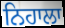
ਨਿਹਾਲਾ